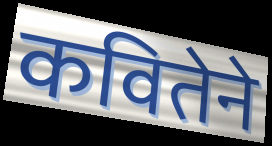
कवितेने